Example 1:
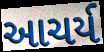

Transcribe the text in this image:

આચર્ય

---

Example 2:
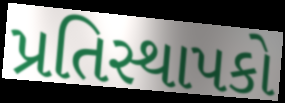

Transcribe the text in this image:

પ્રતિસ્થાપકો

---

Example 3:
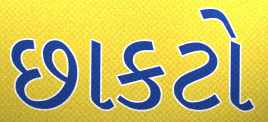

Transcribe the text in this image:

છાકટો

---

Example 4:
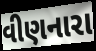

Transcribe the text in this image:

વીણનારા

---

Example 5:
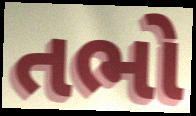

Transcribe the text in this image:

તભો